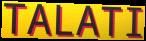
TALATI